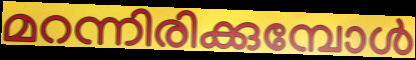
മറന്നിരിക്കുമ്പോൾ